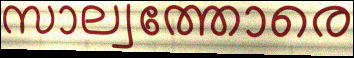
സാല്വത്തോരെ